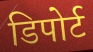
डिपोर्ट